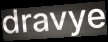
dravye